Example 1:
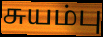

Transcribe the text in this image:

சுயம்பு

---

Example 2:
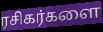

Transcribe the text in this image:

ரசிகர்களை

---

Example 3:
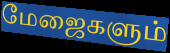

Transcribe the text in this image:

மேஜைகளும்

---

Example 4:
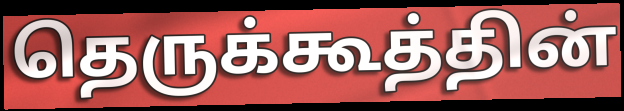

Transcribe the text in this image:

தெருக்கூத்தின்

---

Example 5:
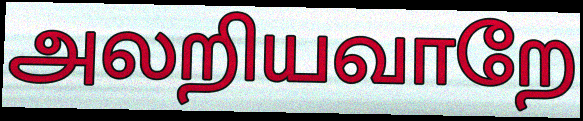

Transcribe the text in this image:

அலறியவாறே